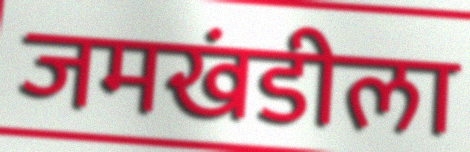
जमखंडीला